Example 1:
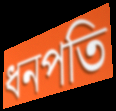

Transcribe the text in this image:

ধনপতি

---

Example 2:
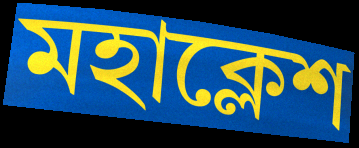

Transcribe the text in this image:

মহাক্লেশ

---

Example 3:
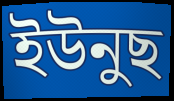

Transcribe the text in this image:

ইউনুছ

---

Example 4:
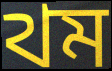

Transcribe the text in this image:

থম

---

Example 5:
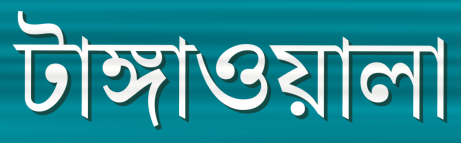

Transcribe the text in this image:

টাঙ্গাওয়ালা